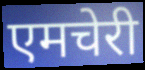
एमचेरी